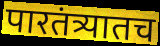
पारतंत्र्यातच